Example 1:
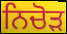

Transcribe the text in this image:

ਨਿਚੋੜ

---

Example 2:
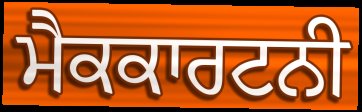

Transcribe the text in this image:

ਮੈਕਕਾਰਟਨੀ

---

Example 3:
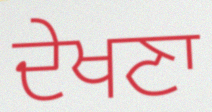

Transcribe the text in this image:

ਦੇਖਣਾ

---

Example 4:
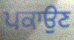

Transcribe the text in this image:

ਪਕਾਉਣ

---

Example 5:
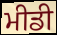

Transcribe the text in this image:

ਮੀਡੀ